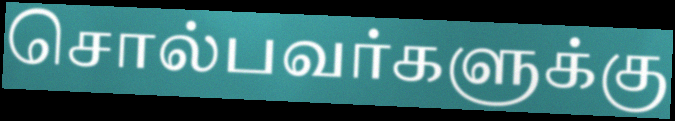
சொல்பவர்களுக்கு